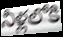
నీళ్లలోకి